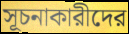
সূচনাকারীদের